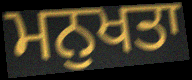
ਮਨੁਖਤਾ